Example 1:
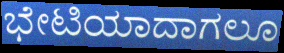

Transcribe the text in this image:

ಭೇಟಿಯಾದಾಗಲೂ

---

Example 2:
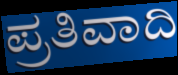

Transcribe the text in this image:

ಪ್ರತಿವಾದಿ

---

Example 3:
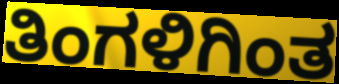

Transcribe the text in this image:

ತಿಂಗಳಿಗಿಂತ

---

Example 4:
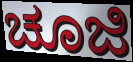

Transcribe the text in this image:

ಚೂಜಿ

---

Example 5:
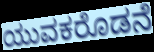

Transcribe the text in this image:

ಯುವಕರೊಡನೆ